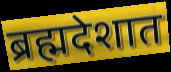
ब्रह्मदेशात